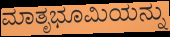
ಮಾತೃಭೂಮಿಯನ್ನು